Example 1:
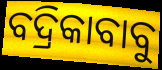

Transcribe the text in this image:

ବଦ୍ରିକାବାବୁ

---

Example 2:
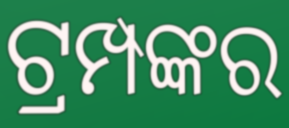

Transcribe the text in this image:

ଟ୍ରମ୍ପଙ୍କର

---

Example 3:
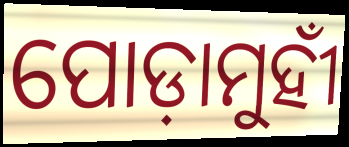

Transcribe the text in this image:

ପୋଡ଼ାମୁହୀଁ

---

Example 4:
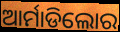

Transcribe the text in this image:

ଆର୍ମାଡିଲୋର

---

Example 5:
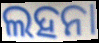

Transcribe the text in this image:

ଲହନା